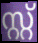
സ്റ്റ്